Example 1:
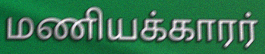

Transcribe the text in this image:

மணியக்காரர்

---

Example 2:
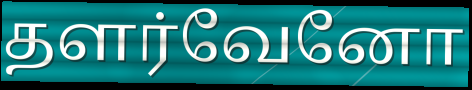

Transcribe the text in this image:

தளர்வேனோ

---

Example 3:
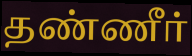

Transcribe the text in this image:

தண்ணீர்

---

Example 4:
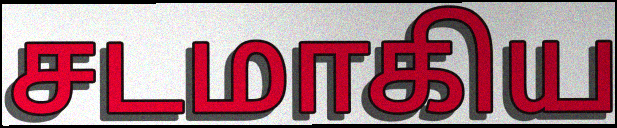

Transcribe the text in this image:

சடமாகிய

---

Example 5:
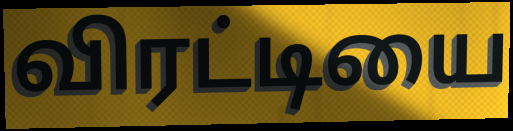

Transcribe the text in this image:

விரட்டியை